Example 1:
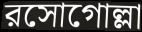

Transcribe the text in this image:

রসোগোল্লা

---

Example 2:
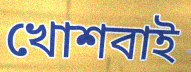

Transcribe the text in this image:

খোশবাই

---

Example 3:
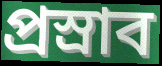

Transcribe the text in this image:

প্রস্রাব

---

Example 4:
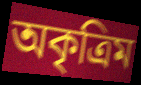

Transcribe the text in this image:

অকৃত্রিম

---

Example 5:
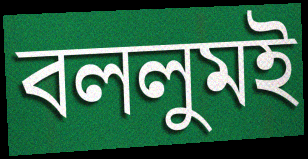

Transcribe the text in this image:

বললুমই